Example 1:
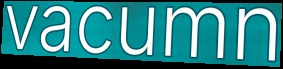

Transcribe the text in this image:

vacumn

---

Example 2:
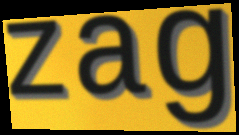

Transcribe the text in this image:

zag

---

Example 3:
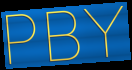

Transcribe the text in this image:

PBY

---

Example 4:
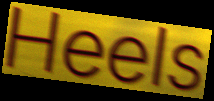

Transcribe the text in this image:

Heels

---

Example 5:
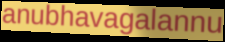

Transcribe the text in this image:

anubhavagalannu